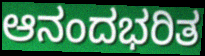
ಆನಂದಭರಿತ